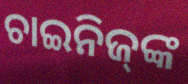
ଚାଇନିଜ୍‌ଙ୍କ